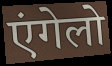
एंगेलो